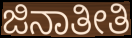
ಜಿನಾತೀತಿ